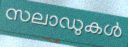
സലാഡുകൾ